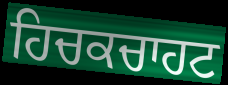
ਹਿਚਕਚਾਹਟ